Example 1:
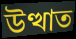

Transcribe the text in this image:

উত্থাত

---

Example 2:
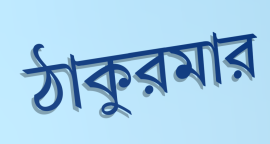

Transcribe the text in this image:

ঠাকুরমার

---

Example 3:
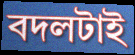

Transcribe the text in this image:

বদলটাই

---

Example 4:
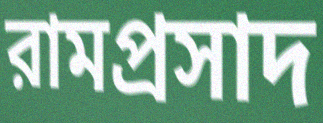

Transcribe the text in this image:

রামপ্রসাদ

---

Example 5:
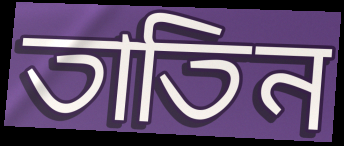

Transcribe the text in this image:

তাতিন